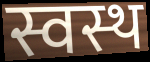
स्वस्थ